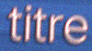
titre